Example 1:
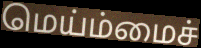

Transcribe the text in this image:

மெய்ம்மைச்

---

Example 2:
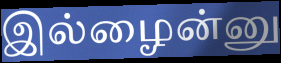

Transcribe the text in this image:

இல்ழைன்னு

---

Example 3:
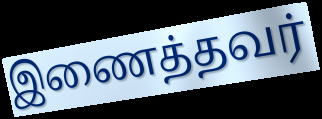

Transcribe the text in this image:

இணைத்தவர்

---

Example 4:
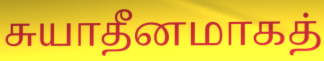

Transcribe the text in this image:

சுயாதீனமாகத்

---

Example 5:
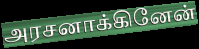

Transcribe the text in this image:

அரசனாக்கினேன்